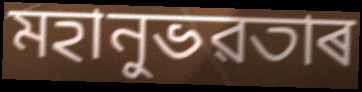
মহানুভৱতাৰ